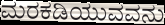
ಮರಕಡಿಯುವವನು